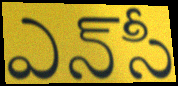
ఎన్‌సీ